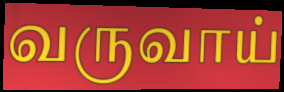
வருவாய்